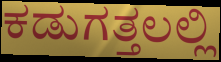
ಕಡುಗತ್ತಲಲ್ಲಿ